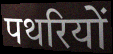
पथरियों